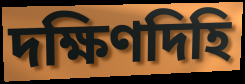
দক্ষিণদিহি